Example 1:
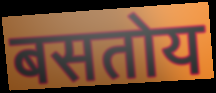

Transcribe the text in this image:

बसतोय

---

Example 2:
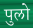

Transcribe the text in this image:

पुलो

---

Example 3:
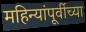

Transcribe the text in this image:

महिन्यांपूर्वीच्या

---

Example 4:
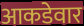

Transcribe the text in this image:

आकडेवार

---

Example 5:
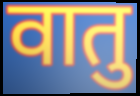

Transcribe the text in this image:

वातु